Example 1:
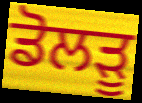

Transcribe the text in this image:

ਡੋਲੜੂ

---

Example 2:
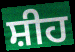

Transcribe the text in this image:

ਸ਼ੀਹ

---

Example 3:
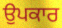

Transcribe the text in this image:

ਉਪਕਾਰ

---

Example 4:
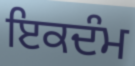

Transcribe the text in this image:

ਇਕਦੰਮ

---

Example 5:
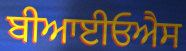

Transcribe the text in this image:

ਬੀਆਈਓਐਸ